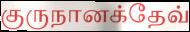
குருநானக்தேவ்